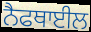
ਨੈਫਥਾਈਲ